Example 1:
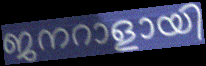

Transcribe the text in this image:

ജനറാളായി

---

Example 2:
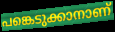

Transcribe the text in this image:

പങ്കെടുക്കാനാണ്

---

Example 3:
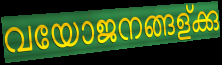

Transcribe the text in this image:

വയോജനങ്ങള്ക്കു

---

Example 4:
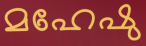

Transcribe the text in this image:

മഹേഷു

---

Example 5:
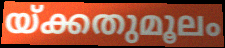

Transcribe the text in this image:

യ്ക്കതുമൂലം